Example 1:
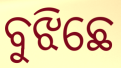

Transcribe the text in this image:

ବୁଝିଛେ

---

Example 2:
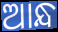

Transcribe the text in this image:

ଆନ୍ଧ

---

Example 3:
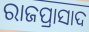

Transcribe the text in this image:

ରାଜପ୍ରାସାଦ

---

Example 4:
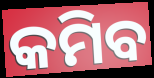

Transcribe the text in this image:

କମିବ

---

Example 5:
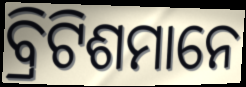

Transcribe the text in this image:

ବ୍ରିଟିଶମାନେ